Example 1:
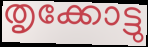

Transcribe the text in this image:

തൃക്കോട്ടു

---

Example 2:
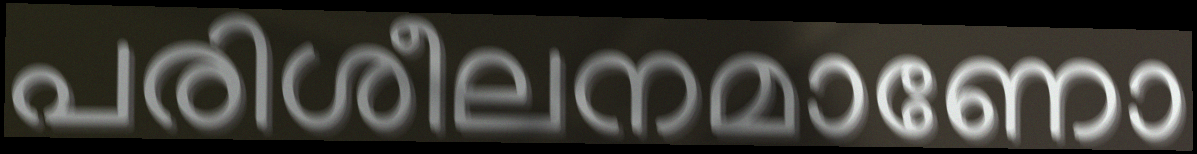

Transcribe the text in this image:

പരിശീലനമാണോ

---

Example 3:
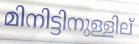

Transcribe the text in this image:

മിനിട്ടിനുള്ളില്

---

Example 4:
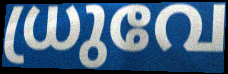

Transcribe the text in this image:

ധ്രുവേ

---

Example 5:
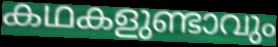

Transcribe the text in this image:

കഥകളുണ്ടാവും